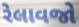
રેલાવજો